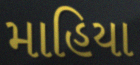
માહિયા